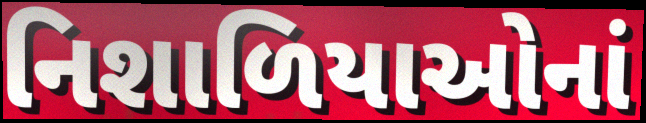
નિશાળિયાઓનાં